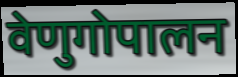
वेणुगोपालन